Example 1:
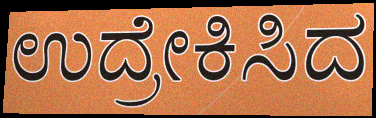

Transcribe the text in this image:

ಉದ್ರೇಕಿಸಿದ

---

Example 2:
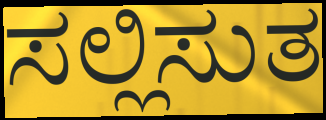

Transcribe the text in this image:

ಸಲ್ಲಿಸುತ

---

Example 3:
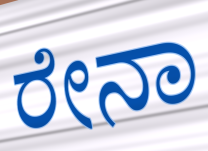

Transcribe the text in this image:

ರೇನಾ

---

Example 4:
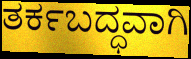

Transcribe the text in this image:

ತರ್ಕಬದ್ಧವಾಗಿ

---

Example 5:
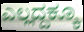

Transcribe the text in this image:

ಎಲ್ಲದ್ದಕ್ಕೂ